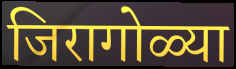
जिरागोळ्या